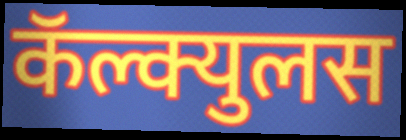
कॅल्क्युलस